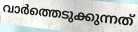
വാർത്തെടുക്കുന്നത്